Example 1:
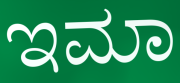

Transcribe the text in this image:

ಇಮಾ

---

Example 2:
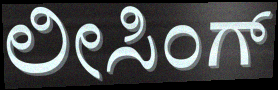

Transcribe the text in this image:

ಲೀಸಿಂಗ್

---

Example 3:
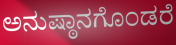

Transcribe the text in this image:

ಅನುಷ್ಠಾನಗೊಂಡರೆ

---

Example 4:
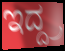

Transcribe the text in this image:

ಇದ್ದ್ರ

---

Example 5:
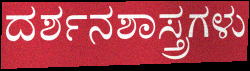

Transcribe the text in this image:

ದರ್ಶನಶಾಸ್ತ್ರಗಳು